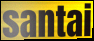
santai